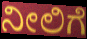
ನೀಲಿಗೆ